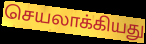
செயலாக்கியது